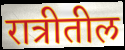
रात्रीतील